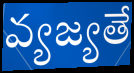
వ్యజ్యతే